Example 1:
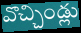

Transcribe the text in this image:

వొచ్చిండ్లు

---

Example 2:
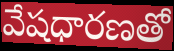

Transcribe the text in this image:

వేషధారణతో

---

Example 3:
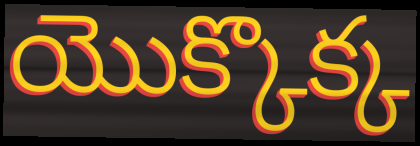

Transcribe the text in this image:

యొక్కొక్క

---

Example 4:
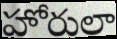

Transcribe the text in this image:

హోరులా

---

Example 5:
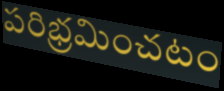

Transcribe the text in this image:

పరిభ్రమించటం